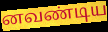
னவண்டிய